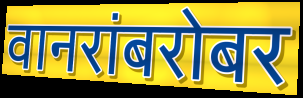
वानरांबरोबर